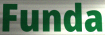
Funda